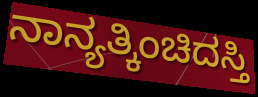
ನಾನ್ಯತ್ಕಿಂಚಿದಸ್ತಿ